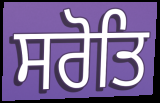
ਸਰੋਤਿ